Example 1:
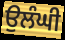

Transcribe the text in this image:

ਉਲੰਘੀ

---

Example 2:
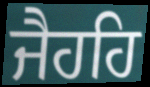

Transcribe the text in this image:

ਜੈਹਹਿ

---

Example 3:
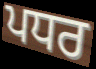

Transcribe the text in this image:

ਪਧਰ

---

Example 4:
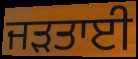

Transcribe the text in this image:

ਜੜਤਾਈ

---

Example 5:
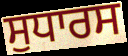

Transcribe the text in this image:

ਸੁਧਾਰਸ